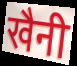
खैनी